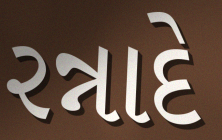
રન્નાદે